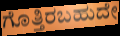
ಗೊತ್ತಿರಬಹುದೇ